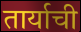
तार्याची